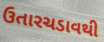
ઉતારચડાવથી